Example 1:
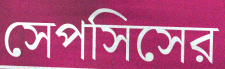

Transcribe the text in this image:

সেপসিসের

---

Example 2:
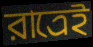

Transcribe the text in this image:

রাত্রেই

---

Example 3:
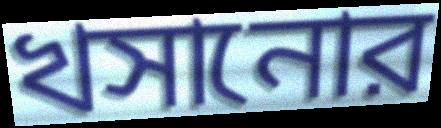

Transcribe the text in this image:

খসানোর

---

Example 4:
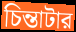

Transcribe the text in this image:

চিন্তাটার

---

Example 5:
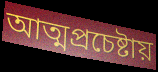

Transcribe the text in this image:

আত্মপ্রচেষ্টায়